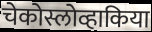
चेकोस्लोव्हाकिया